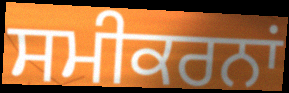
ਸਮੀਕਰਨਾਂ